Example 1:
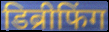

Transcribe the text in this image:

डिब्रीफिंग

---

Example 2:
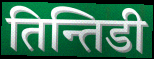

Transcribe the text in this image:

तिन्तिडी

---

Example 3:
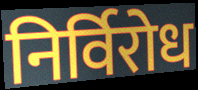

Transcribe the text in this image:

निर्विरोध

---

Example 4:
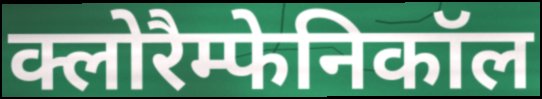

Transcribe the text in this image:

क्लोरैम्फेनिकॉल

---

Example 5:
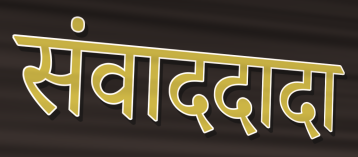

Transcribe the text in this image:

संवाददादा